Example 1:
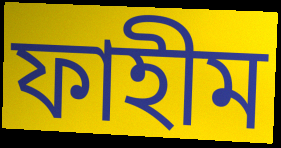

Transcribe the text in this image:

ফাহীম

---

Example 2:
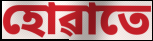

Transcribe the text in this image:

হোৱাতে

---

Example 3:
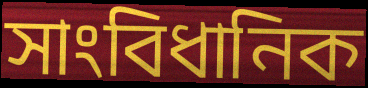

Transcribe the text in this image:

সাংবিধানিক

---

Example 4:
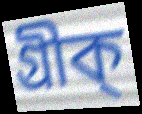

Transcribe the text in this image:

গ্ৰীক্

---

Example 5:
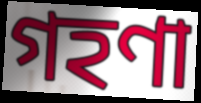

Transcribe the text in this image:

গহণা